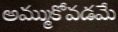
అమ్ముకోవడమే